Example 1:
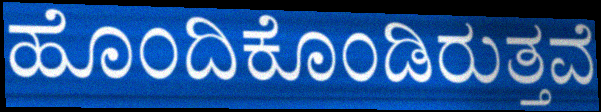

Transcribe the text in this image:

ಹೊಂದಿಕೊಂಡಿರುತ್ತವೆ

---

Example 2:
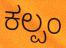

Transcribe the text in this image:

ಕಲ್ಪಂ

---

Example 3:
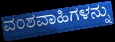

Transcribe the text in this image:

ವಂಶವಾಹಿಗಳನ್ನು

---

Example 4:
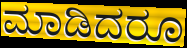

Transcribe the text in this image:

ಮಾಡಿದರೂ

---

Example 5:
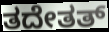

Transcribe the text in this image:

ತದೇತತ್